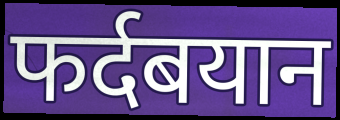
फर्दबयान